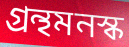
গ্রন্থমনস্ক